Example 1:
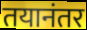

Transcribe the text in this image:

तयानंतर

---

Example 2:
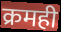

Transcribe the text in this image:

क्रमही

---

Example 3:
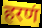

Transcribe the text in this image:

हरणं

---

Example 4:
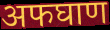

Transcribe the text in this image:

अफघाण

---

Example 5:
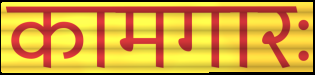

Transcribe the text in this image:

कामगारः